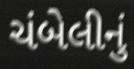
ચંબેલીનું